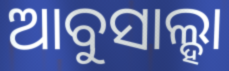
ଆବୁସାଲ୍ହା